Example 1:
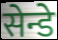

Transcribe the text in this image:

सेन्डे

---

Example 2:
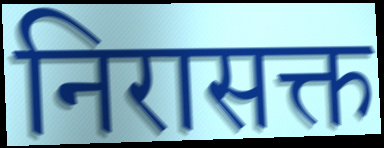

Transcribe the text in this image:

निरासक्त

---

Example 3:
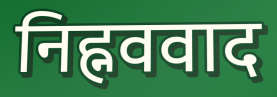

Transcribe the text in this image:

निह्नववाद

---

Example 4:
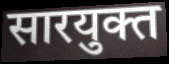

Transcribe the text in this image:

सारयुक्त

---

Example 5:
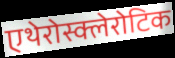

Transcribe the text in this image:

एथेरोस्क्लेरोटिक